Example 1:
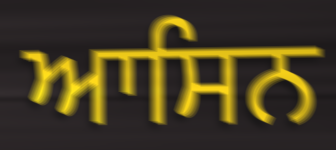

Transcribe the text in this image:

ਆਸਿਨ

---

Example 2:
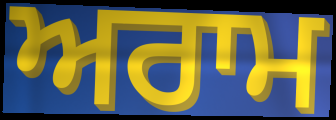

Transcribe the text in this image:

ਅਰਾਮ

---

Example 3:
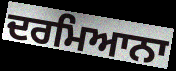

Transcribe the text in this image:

ਦਰਮਿਆਨਾ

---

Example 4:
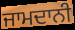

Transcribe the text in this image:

ਜਾਮਦਾਨੀ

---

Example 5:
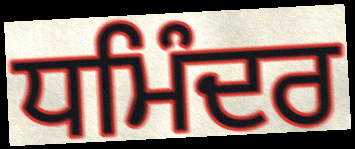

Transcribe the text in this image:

ਧਮਿੰਦਰ